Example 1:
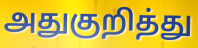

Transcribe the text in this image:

அதுகுறித்து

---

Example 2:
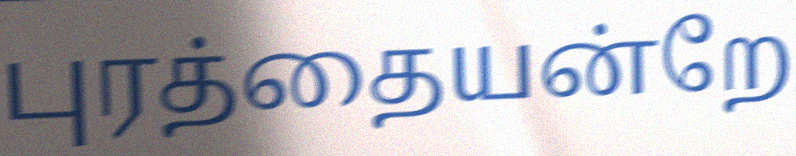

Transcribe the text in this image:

புரத்தையன்றே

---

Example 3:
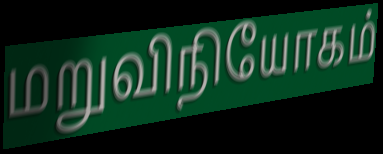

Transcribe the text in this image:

மறுவிநியோகம்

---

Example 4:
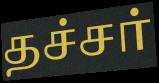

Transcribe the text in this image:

தச்சர்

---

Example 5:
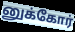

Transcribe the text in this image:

னுக்கோர்